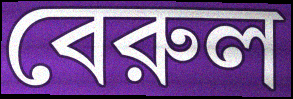
বেরুল